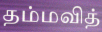
தம்மவித்